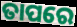
ତାପରେ